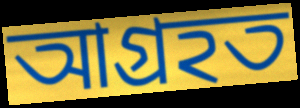
আগ্ৰহত